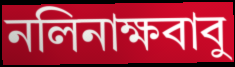
নলিনাক্ষবাবু